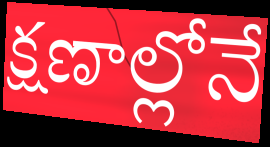
క్షణాల్లోనే